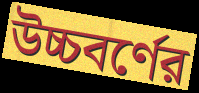
উচ্চবর্ণের